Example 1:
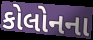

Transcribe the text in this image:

કોલોનના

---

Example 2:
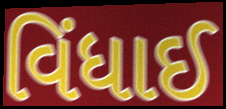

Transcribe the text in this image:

વિંધાઈ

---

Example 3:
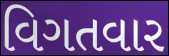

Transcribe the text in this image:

વિગતવાર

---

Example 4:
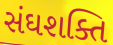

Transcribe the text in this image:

સંઘશક્તિ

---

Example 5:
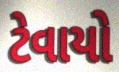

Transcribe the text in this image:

ટેવાયો